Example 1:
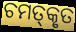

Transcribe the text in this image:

ଚମତ୍‌କୃତ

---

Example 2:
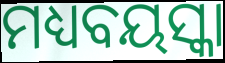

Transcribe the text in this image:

ମଧ୍ୟବୟସ୍କା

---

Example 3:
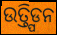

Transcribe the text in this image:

ଉତ୍ତ୍ପିଡନ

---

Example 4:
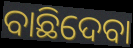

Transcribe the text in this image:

ବାଛିଦେବା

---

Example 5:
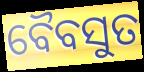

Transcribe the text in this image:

ବୈବସୁତ